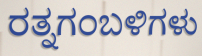
ರತ್ನಗಂಬಳಿಗಳು